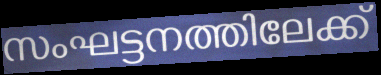
സംഘട്ടനത്തിലേക്ക്